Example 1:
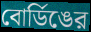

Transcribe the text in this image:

বোর্ডিঙের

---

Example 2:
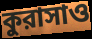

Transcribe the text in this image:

কুরাসাও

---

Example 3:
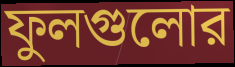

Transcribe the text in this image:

ফুলগুলোর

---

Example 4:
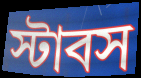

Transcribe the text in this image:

স্টাবস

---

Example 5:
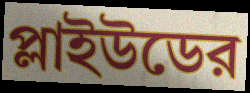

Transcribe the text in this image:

প্লাইউডের